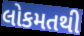
લોકમતથી